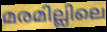
മരമില്ലിലെ